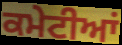
ਕਮੇਟੀਆਂ